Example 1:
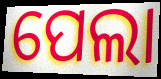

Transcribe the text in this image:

ପେଲା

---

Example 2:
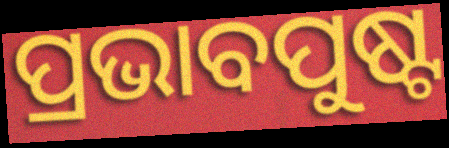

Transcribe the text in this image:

ପ୍ରଭାବପୁଷ୍ଟ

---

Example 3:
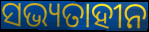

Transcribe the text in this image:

ସଭ୍ୟତାହୀନ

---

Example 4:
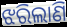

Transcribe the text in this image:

ଝରିଲାଣି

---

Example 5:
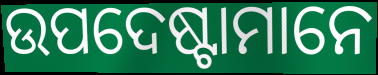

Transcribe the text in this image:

ଉପଦେଷ୍ଟାମାନେ